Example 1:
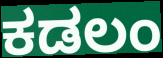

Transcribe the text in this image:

ಕಡಲಂ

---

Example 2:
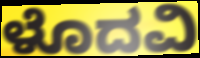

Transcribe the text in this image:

ಳೊದವಿ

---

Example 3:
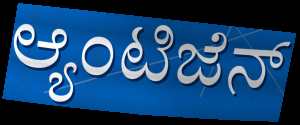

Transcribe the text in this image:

ಆ್ಯಂಟಿಜೆನ್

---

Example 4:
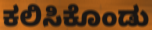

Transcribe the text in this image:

ಕಲಿಸಿಕೊಂಡು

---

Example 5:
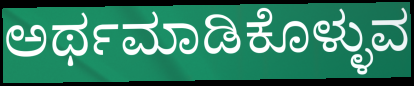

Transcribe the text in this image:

ಅರ್ಥಮಾಡಿಕೊಳ್ಳುವ